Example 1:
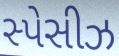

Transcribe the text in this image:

સ્પેસીઝ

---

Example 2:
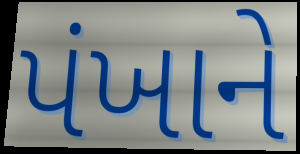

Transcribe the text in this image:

પંખાને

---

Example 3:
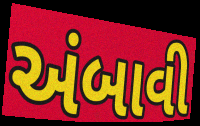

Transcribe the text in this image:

અંબાવી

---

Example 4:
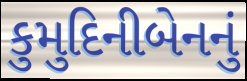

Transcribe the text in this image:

કુમુદિનીબેનનું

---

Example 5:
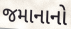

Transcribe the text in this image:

જમાનાનો